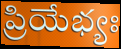
ప్రియేభ్యః